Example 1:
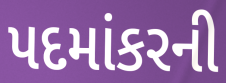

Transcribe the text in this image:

પદમાંકરની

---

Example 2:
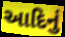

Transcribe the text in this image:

આદિનું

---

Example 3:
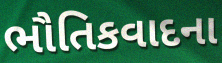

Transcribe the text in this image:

ભૌતિકવાદના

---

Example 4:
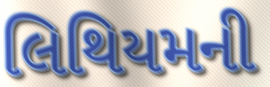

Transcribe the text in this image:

લિથિયમની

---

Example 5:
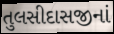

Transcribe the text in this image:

તુલસીદાસજીનાં